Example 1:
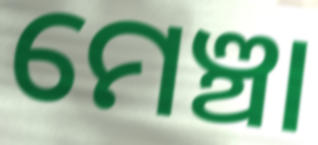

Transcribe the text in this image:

ମେଞ୍ଚା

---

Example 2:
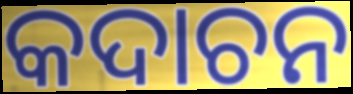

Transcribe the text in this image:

କଦାଚନ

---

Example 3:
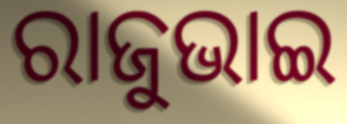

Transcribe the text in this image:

ରାଜୁଭାଇ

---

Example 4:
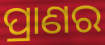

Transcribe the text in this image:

ପ୍ରାଣର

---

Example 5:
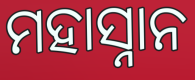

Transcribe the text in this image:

ମହାସ୍ନାନ